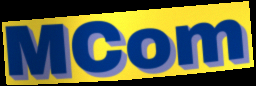
MCom